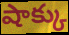
షాక్కు